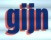
gijn